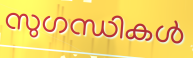
സുഗന്ധികൾ